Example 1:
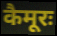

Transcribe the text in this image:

कैमूरः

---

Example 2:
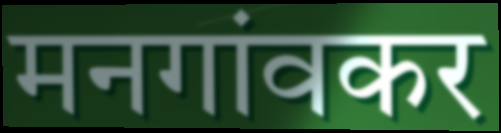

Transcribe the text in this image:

मनगांवकर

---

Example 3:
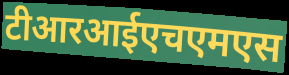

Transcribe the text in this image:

टीआरआईएचएमएस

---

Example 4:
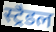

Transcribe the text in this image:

स्ट्रैडल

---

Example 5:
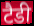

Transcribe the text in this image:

टैडी